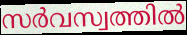
സർവസ്വത്തിൽ